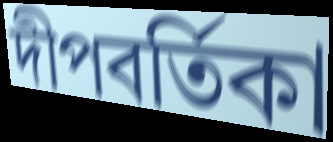
দীপবর্তিকা